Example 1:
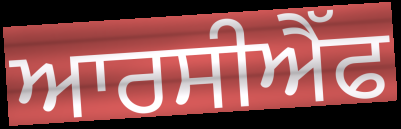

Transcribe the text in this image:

ਆਰਸੀਐੱਫ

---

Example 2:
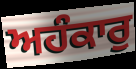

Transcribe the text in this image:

ਅਹੰਕਾਰੁ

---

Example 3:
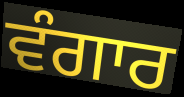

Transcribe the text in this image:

ਵੰਗਾਰ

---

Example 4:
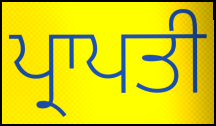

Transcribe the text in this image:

ਪ੍ਰਾਪਤੀ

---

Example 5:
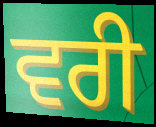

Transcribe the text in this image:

ਵਰੀ